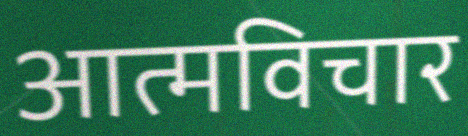
आत्मविचार